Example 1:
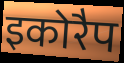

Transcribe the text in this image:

इकोरैप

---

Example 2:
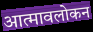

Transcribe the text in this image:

आत्‍मावलोकन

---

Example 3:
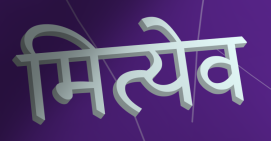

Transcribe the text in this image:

मित्येव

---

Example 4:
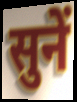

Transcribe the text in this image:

सुनें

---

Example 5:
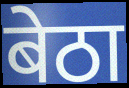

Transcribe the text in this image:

बेठा